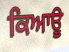
ਕਿਆਊ